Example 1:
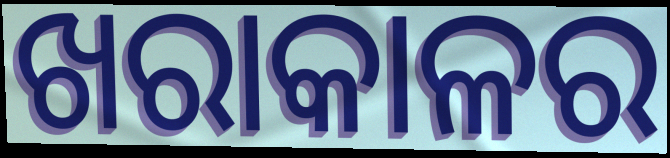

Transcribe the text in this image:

ଖରାକାଳର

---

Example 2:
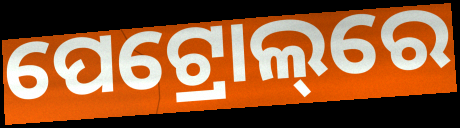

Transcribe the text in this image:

ପେଟ୍ରୋଲ୍‌ରେ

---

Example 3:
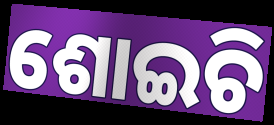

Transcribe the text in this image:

ଶୋଇଚି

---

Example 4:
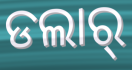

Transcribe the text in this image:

ଡଲାର୍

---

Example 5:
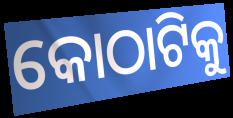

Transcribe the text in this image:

କୋଠାଟିକୁ